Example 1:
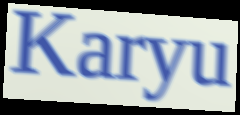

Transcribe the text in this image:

Karyu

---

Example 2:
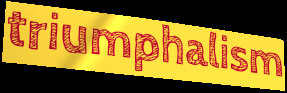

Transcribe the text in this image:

triumphalism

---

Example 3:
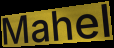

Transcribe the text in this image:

Mahel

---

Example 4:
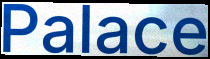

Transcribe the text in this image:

Palace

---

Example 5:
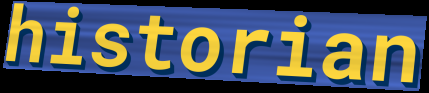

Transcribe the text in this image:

historian